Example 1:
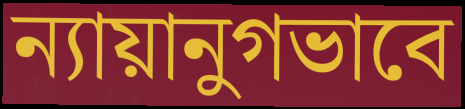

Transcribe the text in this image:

ন্যায়ানুগভাবে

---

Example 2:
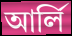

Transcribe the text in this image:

আর্লি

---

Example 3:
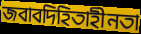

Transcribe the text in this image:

জবাবদিহিতাহীনতা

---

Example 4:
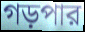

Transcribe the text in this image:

গড়পার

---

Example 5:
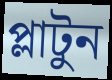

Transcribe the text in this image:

প্লাটুন